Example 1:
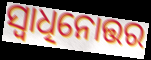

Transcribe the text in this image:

ସ୍ୱାଧିନୋତ୍ତର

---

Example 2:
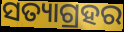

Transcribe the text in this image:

ସତ୍ୟାଗ୍ରହର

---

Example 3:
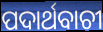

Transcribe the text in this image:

ପଦାର୍ଥବାଚୀ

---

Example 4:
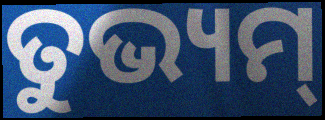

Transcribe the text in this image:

ତୁଭ୍ୟମ୍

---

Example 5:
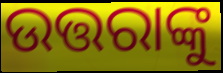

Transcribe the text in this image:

ଉତ୍ତରାଙ୍କୁ